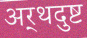
अर्थदुष्ट